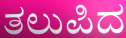
ತಲುಪಿದ